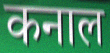
कनाल